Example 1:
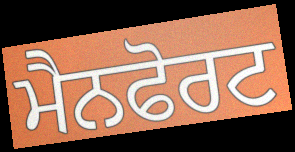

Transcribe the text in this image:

ਮੈਨਫੋਰਟ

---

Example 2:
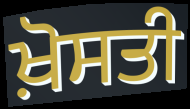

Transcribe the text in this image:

ਖ਼ੋਸਤੀ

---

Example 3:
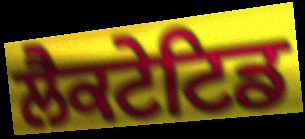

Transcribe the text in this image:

ਲੈਕਟੇਟਿਡ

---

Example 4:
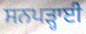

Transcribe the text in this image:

ਸਨਪੜ੍ਹਾਈ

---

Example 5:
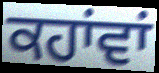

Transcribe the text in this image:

ਕਹਾਂਵਾਂ